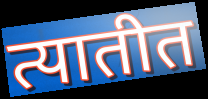
त्यातीत